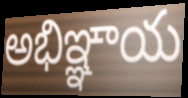
అభిఞ్ఞాయ